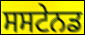
ਸਸਟੇਨਡ